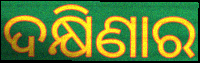
ଦକ୍ଷିଣାର